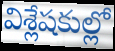
విశ్లేషకుల్లో